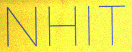
NHIT